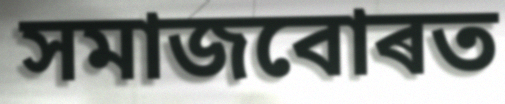
সমাজবোৰত